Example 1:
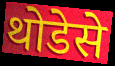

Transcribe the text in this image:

थोडेसे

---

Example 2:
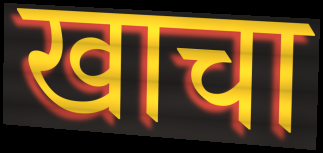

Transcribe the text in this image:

खाचा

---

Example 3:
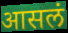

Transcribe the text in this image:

आसलं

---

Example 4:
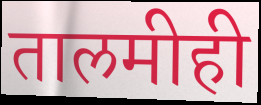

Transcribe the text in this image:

तालमीही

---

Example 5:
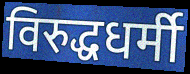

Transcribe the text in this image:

विरुद्धधर्मी